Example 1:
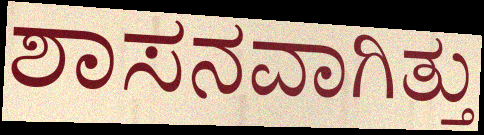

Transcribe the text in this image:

ಶಾಸನವಾಗಿತ್ತು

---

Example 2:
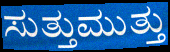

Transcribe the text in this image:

ಸುತ್ತುಮುತ್ತು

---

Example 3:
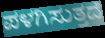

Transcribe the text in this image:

ಪಳಗಿಸುತ್ತದೆ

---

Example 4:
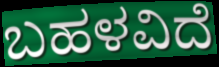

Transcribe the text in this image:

ಬಹಳವಿದೆ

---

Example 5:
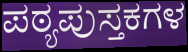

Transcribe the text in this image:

ಪಠ್ಯಪುಸ್ತಕಗಳ